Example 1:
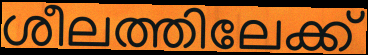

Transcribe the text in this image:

ശീലത്തിലേക്ക്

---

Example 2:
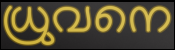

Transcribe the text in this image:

ധ്രുവനെ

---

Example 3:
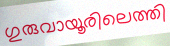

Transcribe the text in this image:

ഗുരുവായൂരിലെത്തി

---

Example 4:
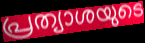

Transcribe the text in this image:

പ്രത്യാശയുടെ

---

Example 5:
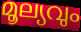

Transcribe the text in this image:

മൂല്യവും